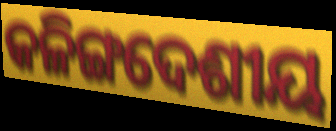
କଳିଙ୍ଗଦେଶୀୟ